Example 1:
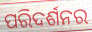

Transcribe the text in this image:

ପରିଦର୍ଶନର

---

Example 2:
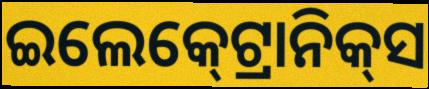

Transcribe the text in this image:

ଇଲେକ୍‍ଟ୍ରୋନିକ୍‍ସ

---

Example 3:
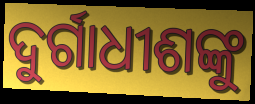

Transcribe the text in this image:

ଦୁର୍ଗାଧୀଶଙ୍କୁ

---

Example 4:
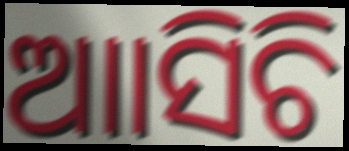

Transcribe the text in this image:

ଆାସିଚି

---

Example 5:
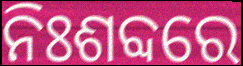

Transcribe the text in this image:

ନିଃଶବ୍ଦରେ